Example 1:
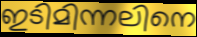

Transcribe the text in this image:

ഇടിമിന്നലിനെ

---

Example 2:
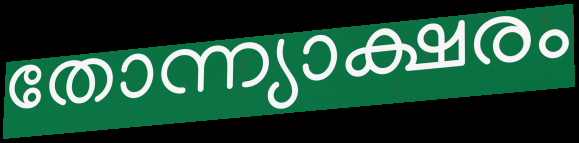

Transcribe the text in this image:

തോന്ന്യാക്ഷരം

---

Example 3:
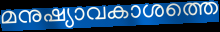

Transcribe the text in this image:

മനുഷ്യാവകാശത്തെ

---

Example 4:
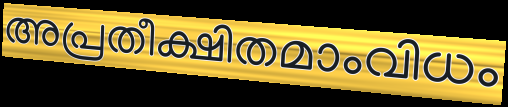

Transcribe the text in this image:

അപ്രതീക്ഷിതമാംവിധം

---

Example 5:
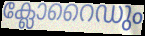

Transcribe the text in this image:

ക്ലോറൈഡും